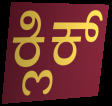
ಕ್ಲಿಕ್